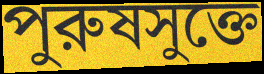
পুরুষসুক্তে